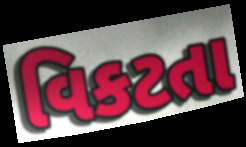
વિકટતા